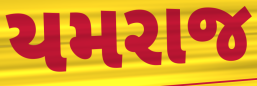
યમરાજ